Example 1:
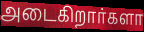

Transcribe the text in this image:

அடைகிறார்களா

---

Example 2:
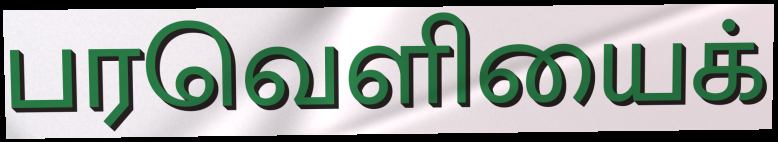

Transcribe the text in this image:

பரவெளியைக்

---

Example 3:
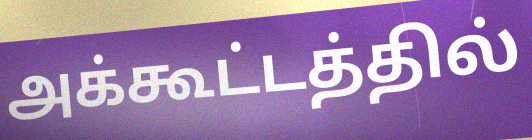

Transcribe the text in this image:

அக்கூட்டத்தில்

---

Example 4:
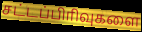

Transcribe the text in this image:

சட்டப்பிரிவுகளை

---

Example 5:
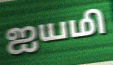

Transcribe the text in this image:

ஐயமி